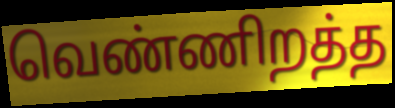
வெண்ணிறத்த